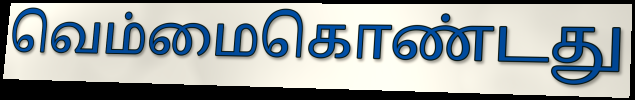
வெம்மைகொண்டது